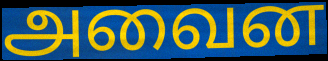
அவைன